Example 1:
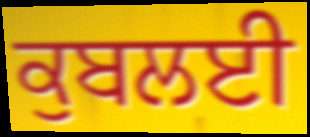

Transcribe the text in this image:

ਕੁਬਲਈ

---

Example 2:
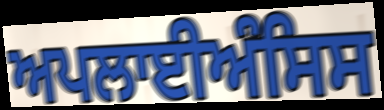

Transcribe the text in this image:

ਅਪਲਾਈਅੰਸਿਸ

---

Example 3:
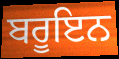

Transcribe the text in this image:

ਬਰੂਇਨ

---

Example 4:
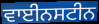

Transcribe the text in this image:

ਵਾਈਨਸਟੀਨ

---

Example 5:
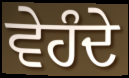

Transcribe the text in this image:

ਵੇਹੰਦੇ